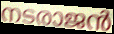
നടരാജൻ